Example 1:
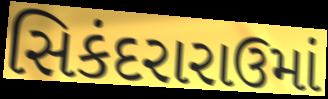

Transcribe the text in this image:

સિકંદરારાઉમાં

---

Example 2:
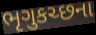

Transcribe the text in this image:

ભૃગુકચ્છના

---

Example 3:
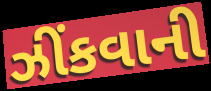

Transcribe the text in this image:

ઝીંકવાની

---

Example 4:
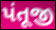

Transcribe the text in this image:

પંતૂજી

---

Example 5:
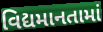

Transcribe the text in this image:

વિદ્યમાનતામાં